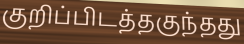
குறிப்பிடத்தகுந்தது